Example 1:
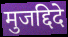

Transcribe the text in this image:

मुजद्दिदे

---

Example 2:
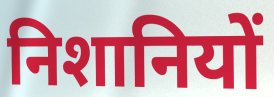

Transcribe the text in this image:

निशानियों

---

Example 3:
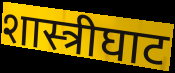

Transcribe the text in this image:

शास्त्रीघाट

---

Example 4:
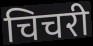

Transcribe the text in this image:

चिचरी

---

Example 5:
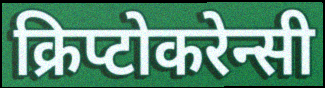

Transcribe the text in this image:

क्रिप्टोकरेन्सी